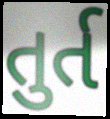
તુર્ત